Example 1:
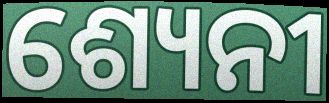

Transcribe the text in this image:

ଶ୍ୟେନୀ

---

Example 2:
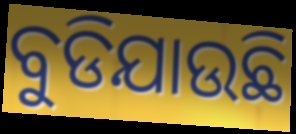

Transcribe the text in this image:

ବୁଡିଯାଉଛି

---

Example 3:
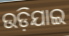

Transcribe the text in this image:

ଉଡ଼ିଯାଇ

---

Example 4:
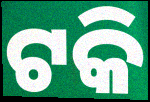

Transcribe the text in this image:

ଟକି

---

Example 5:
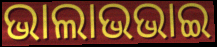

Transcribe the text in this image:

ଭାଲାଭଭାଇ